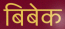
बिबेक